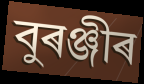
বুৰঞ্জীৰ